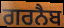
ਗਰਨੈਬ